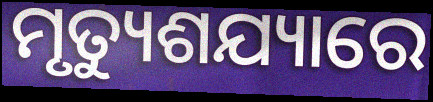
ମୃତ୍ୟୁଶଯ୍ୟାରେ